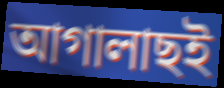
আগালাছই